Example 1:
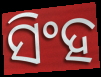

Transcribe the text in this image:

ସିଂହ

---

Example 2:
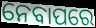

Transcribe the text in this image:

ନେବାପରେ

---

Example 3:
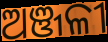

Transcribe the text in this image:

ଅଞ୍ଜଳୀ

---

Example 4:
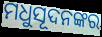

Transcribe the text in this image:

ମଧୁସୂଦନଙ୍କର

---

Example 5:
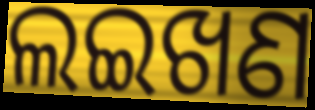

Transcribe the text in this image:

ଲଇଖଣ